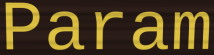
Param